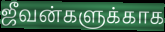
ஜீவன்களுக்காக